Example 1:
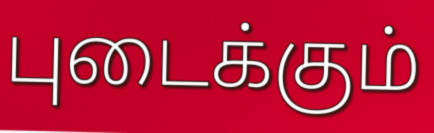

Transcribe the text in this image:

புடைக்கும்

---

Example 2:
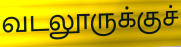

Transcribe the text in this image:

வடலூருக்குச்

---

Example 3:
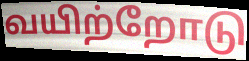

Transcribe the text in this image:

வயிற்றோடு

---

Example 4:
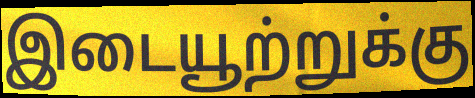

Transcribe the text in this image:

இடையூற்றுக்கு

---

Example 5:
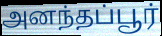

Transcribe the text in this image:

அனந்தப்பூர்